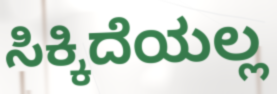
ಸಿಕ್ಕಿದೆಯಲ್ಲ